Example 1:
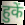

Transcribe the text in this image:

हुकें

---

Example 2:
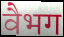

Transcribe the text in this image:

वैभग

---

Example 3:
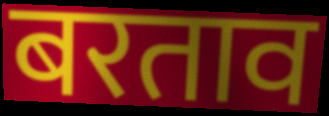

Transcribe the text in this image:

बरताव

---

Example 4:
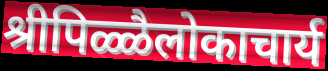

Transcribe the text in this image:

श्रीपिळ्ळैलोकाचार्य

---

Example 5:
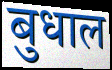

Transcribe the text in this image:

बुधाल